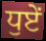
ਧੁਏਂ